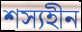
শস্যহীন